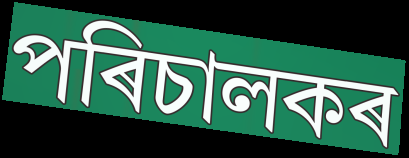
পৰিচালকৰ